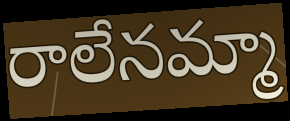
రాలేనమ్మా